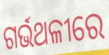
ଗର୍ଭଥଳୀରେ